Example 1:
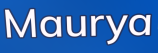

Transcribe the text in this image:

Maurya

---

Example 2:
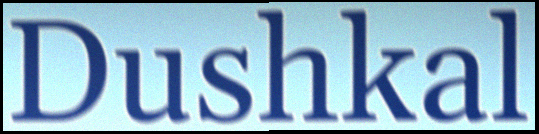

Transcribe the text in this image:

Dushkal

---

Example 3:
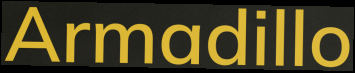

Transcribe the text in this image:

Armadillo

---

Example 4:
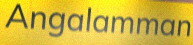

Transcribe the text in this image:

Angalamman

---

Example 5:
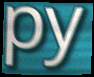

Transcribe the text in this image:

py